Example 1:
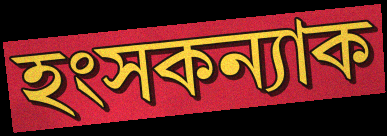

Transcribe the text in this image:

হংসকন্যাক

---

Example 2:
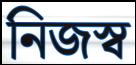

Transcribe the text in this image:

নিজস্ব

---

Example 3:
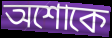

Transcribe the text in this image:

অশোকে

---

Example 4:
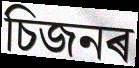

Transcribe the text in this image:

চিজনৰ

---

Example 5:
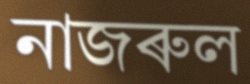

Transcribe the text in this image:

নাজৰুল